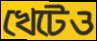
খেটেও